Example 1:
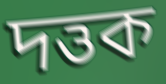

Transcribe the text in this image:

দত্তক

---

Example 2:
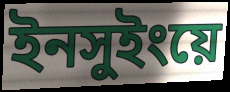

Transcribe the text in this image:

ইনসুইংয়ে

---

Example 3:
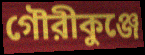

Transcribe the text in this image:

গৌরীকুঞ্জে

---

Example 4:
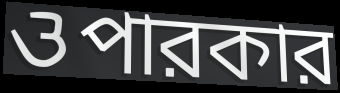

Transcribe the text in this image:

ওপারকার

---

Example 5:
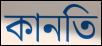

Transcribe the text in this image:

কানতি